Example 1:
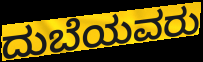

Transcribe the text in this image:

ದುಬೆಯವರು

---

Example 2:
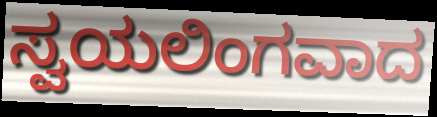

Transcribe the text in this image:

ಸ್ವಯಲಿಂಗವಾದ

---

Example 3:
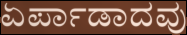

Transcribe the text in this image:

ಏರ್ಪಾಡಾದವು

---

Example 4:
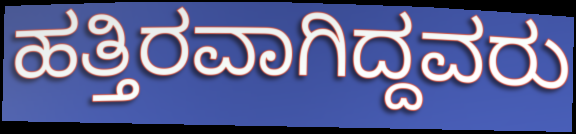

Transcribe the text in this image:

ಹತ್ತಿರವಾಗಿದ್ದವರು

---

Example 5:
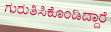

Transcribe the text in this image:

ಗುರುತಿಸಿಕೊಂಡಿದ್ದಾರೆ